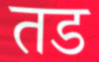
तड